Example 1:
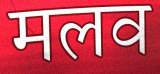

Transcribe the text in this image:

मलव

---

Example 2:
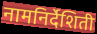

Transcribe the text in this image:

नामनिर्देशिती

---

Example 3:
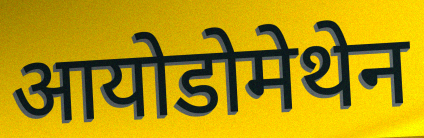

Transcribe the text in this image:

आयोडोमेथेन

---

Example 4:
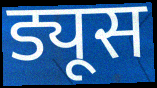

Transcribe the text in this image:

ड्यूस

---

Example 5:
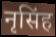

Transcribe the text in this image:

नृसिंह